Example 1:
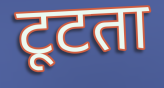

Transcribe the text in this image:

टूटता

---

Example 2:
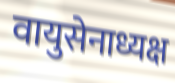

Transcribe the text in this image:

वायुसेनाध्यक्ष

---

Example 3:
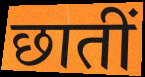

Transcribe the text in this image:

छातीं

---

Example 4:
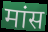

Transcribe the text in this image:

मांस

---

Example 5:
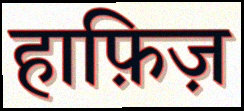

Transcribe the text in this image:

हाफ़िज़